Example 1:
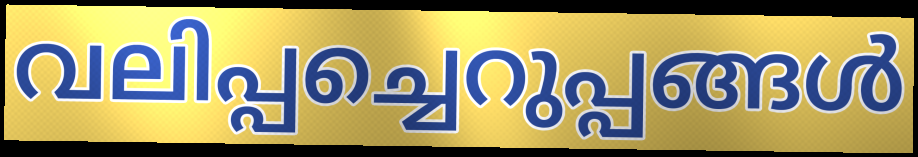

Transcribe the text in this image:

വലിപ്പച്ചെറുപ്പങ്ങൾ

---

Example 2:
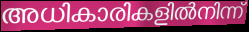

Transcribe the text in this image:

അധികാരികളിൽനിന്ന്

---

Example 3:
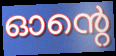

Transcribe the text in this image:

ഓന്റെ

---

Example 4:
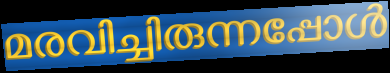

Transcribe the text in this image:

മരവിച്ചിരുന്നപ്പോൾ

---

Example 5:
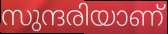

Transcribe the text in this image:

സുന്ദരിയാണ്